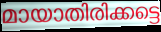
മായാതിരിക്കട്ടെ